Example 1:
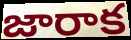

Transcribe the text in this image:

జారాక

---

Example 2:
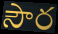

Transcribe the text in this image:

సౌర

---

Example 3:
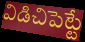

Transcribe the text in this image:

విడిచిపెట్టే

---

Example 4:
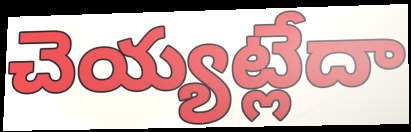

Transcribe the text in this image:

చెయ్యట్లేదా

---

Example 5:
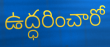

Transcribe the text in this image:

ఉద్ధరించారో